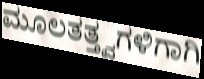
ಮೂಲತತ್ತ್ವಗಳಿಗಾಗಿ